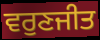
ਵਰੁਣਜੀਤ